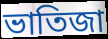
ভাতিজা